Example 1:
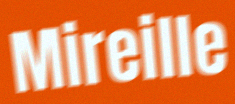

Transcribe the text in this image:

Mireille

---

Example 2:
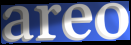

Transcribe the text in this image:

areo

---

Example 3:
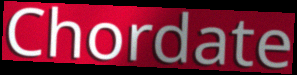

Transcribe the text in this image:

Chordate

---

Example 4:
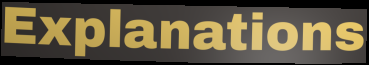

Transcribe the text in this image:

Explanations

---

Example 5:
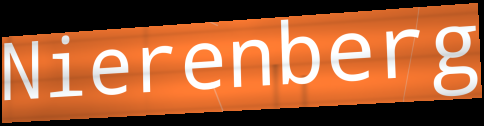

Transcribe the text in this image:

Nierenberg